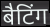
बैटिंग